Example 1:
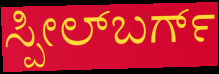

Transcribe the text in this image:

ಸ್ಪೀಲ್‌ಬರ್ಗ್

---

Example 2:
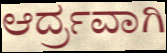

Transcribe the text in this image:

ಆರ್ದ್ರವಾಗಿ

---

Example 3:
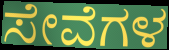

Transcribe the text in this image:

ಸೇವೆಗಳ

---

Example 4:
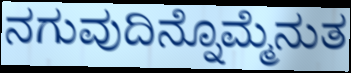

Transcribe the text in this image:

ನಗುವುದಿನ್ನೊಮ್ಮೆನುತ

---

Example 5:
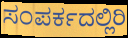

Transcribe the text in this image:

ಸಂಪರ್ಕದಲ್ಲಿರಿ